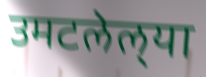
उमटलेल्या